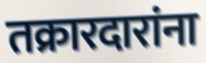
तक्रारदारांना